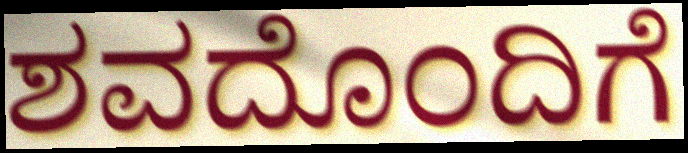
ಶವದೊಂದಿಗೆ